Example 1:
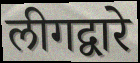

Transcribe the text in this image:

लीगद्वारे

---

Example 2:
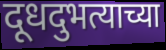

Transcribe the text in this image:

दूधदुभत्याच्या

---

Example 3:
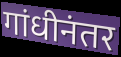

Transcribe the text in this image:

गांधीनंतर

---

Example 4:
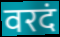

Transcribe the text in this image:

वरदं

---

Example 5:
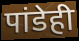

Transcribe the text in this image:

पांडेही